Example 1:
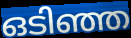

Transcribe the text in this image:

ഒടിഞ്ഞ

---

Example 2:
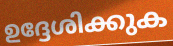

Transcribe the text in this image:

ഉദ്ദേശിക്കുക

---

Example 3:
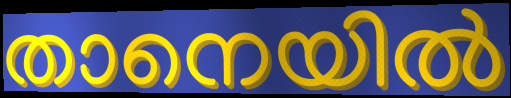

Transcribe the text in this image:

താനെയിൽ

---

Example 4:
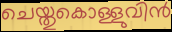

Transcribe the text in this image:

ചെയ്തുകൊള്ളുവിൻ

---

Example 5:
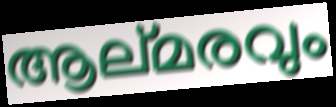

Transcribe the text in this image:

ആല്മരവും